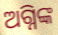
ଅଗ୍ନିଙ୍କ